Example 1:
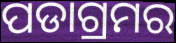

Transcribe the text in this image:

ପଡାଗ୍ରମର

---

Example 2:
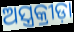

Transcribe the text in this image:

ଅସ୍ତ୍ରକ୍ରୀଡ଼ା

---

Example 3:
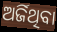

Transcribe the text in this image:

ଅର୍ଜିଥିବା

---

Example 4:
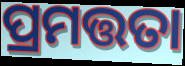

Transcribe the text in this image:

ପ୍ରମତ୍ତତା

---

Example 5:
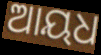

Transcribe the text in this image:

ଆୟଧ